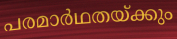
പരമാർഥതയ്ക്കും